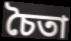
চৈতা